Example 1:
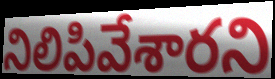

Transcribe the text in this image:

నిలిపివేశారని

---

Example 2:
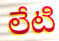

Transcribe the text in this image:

లేటి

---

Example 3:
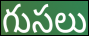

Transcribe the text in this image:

గుసలు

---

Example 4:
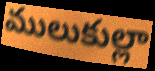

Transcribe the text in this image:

ములుకుల్లా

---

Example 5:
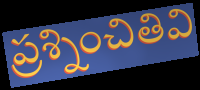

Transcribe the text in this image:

ప్రశ్నించితివి